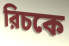
রিচকে